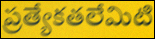
ప్రత్యేకతలేమిటి